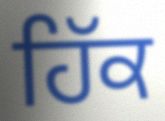
ਹਿੱਕ